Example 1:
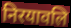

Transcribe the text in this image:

निरयावलि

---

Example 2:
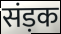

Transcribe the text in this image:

संड़क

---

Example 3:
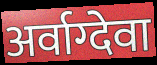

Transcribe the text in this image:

अर्वाग्देवा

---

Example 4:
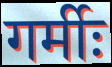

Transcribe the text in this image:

गर्मीः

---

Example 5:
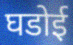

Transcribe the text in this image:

घडोई